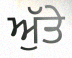
ਅੁੱਤੇ